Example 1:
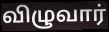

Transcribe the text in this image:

விழுவார்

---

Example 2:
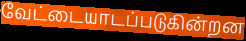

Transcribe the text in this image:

வேட்டையாடப்படுகின்றன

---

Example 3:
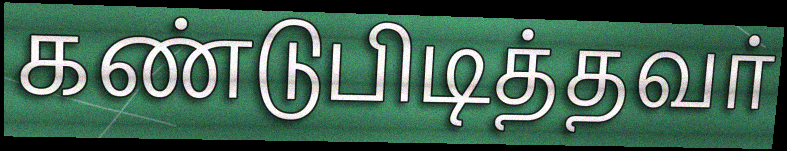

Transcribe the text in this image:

கண்டுபிடித்தவர்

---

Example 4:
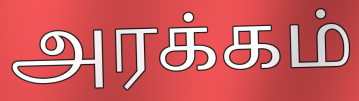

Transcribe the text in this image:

அரக்கம்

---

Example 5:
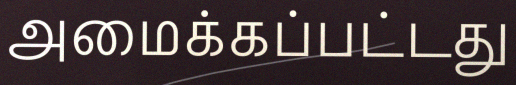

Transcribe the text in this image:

அமைக்கப்பட்டது